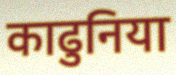
काढुनिया